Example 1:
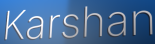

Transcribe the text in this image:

Karshan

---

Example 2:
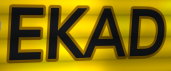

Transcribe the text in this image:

EKAD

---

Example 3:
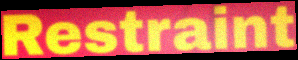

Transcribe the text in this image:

Restraint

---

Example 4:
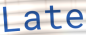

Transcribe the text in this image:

Late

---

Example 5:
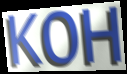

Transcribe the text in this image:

KOH